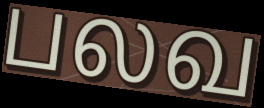
பலவ